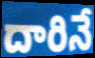
దారినే